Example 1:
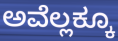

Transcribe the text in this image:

ಅವೆಲ್ಲಕ್ಕೂ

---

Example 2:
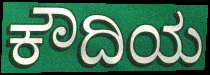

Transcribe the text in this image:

ಕೌದಿಯ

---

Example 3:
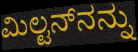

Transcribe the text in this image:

ಮಿಲ್ಟನ್‌ನನ್ನು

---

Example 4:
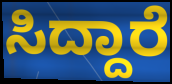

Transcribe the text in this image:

ಸಿದ್ದಾರೆ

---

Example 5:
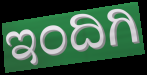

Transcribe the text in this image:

ಇಂದಿಗಿ